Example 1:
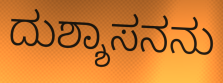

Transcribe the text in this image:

ದುಶ್ಶಾಸನನು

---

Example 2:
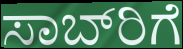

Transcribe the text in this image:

ಸಾಬ್‌ರಿಗೆ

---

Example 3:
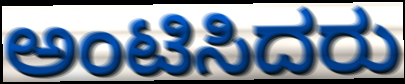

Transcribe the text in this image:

ಅಂಟಿಸಿದರು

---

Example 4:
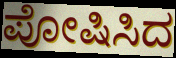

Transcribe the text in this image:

ಪೋಷಿಸಿದ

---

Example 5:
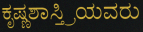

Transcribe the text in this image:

ಕೃಷ್ಣಶಾಸ್ತ್ರಿಯವರು